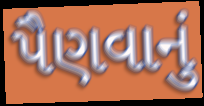
પૈણવાનું